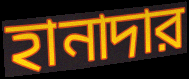
হানাদার